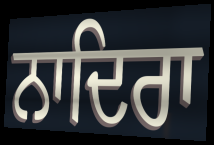
ਨਾਦਿਰਾ